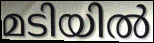
മടിയിൽ